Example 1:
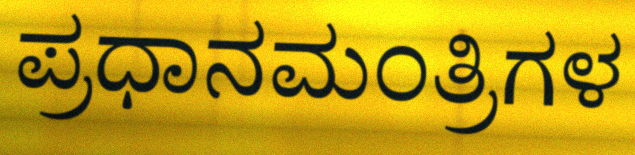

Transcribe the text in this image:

ಪ್ರಧಾನಮಂತ್ರಿಗಳ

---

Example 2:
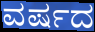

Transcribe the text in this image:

ವರ್ಷದ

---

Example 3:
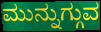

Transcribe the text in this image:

ಮುನ್ನುಗ್ಗುವ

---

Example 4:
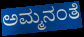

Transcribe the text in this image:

ಅಮ್ಮನಂತೆ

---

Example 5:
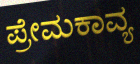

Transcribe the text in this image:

ಪ್ರೇಮಕಾವ್ಯ